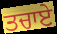
ਤਚਾਏ